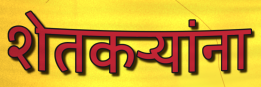
शेतकर्‍यांना